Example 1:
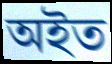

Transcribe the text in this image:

অইত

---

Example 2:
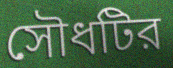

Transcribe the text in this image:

সৌধটির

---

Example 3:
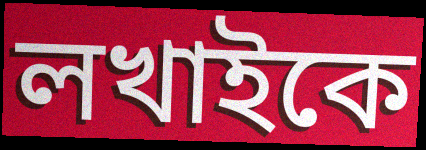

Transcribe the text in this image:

লখাইকে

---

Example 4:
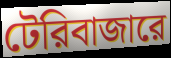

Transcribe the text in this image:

টেরিবাজারে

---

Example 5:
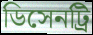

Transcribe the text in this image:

ডিসেনট্রি